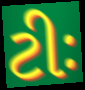
ટીઃ